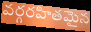
వర్గరహితమైన